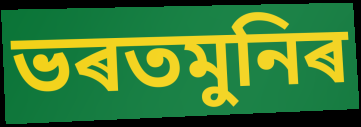
ভৰতমুনিৰ